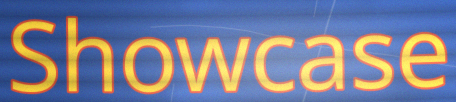
Showcase